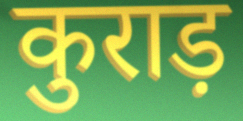
कुराड़